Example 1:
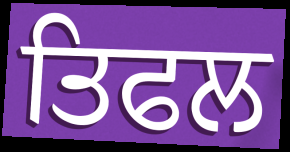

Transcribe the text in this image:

ਤਿਫਲ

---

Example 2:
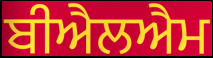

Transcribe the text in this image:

ਬੀਐਲਐਮ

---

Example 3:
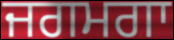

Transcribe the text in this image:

ਜਗਮਗਾ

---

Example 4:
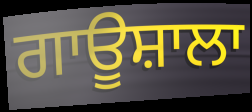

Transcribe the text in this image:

ਗਾਊਸ਼ਾਲਾ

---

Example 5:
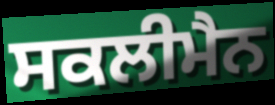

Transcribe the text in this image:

ਸਕਲੀਮੈਨ